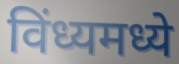
विंध्यमध्ये